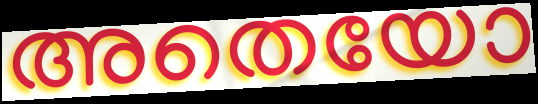
അതെയോ